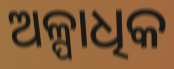
ଅଳ୍ପାଧିକ